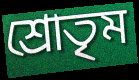
শ্রোতৃম